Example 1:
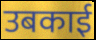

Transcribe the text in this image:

उबकाई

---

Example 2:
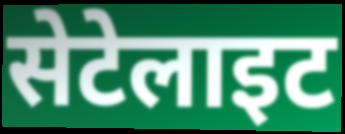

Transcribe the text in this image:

सेटेलाइट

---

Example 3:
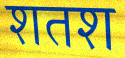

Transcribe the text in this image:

शतश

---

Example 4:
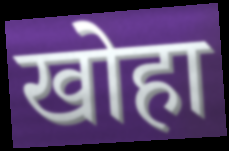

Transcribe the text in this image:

खोहा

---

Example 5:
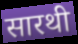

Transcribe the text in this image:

सारथी